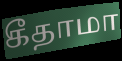
கீதாமா